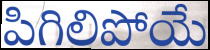
పిగిలిపోయే